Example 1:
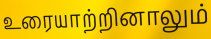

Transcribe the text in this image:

உரையாற்றினாலும்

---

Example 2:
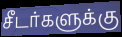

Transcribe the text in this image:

சீடர்களுக்கு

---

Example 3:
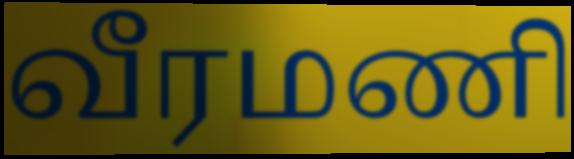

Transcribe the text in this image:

வீரமணி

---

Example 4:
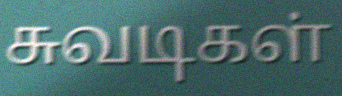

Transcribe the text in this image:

சுவடிகள்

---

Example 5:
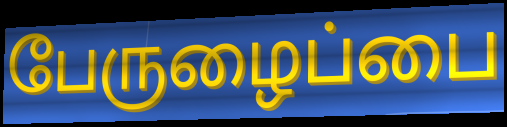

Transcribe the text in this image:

பேருழைப்பை